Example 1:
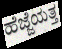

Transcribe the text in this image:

ಹೆಜ್ಜೆಯತ್ತ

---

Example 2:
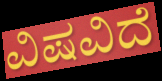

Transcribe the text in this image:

ವಿಷವಿದೆ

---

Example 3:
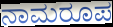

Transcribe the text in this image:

ನಾಮರೂಪ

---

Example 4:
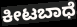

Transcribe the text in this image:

ಕೀಟಬಾಧೆ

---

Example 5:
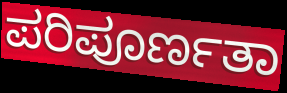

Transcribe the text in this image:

ಪರಿಪೂರ್ಣತಾ